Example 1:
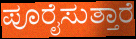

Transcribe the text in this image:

ಪೂರೈಸುತ್ತಾರೆ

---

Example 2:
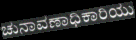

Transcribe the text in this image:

ಚುನಾವಣಾಧಿಕಾರಿಯು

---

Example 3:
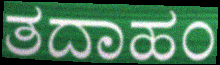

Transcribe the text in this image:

ತದಾಹಂ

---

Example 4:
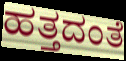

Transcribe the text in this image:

ಹತ್ತದಂತೆ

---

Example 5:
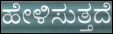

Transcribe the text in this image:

ಹೇಳಿಸುತ್ತದೆ